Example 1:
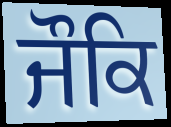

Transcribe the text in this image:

ਜੌਕਿ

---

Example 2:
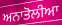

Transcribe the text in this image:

ਅਨਾਤੋਲੀਆ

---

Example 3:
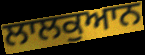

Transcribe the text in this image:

ਲਾਲਕੁਆਨ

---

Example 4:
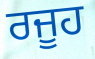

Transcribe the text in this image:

ਰਜੂਹ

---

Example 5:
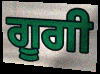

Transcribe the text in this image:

ਗੂਗੀ